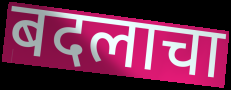
बदलाचा